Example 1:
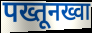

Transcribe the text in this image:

पख्तूनख्वा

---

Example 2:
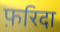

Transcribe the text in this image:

फ़रिदा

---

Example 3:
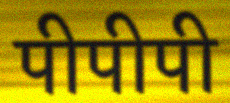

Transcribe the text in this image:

पीपीपी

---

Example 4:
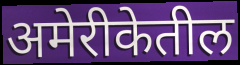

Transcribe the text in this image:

अमेरीकेतील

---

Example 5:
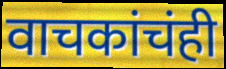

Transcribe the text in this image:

वाचकांचंही